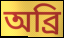
অব্ৰি